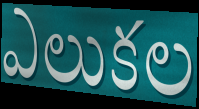
ఎలుకల